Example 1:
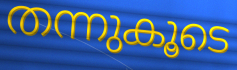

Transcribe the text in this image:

തന്നുകൂടെ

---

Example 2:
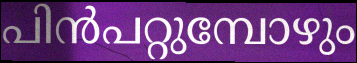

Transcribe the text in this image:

പിൻപറ്റുമ്പോഴും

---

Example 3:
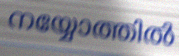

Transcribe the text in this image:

നയ്യോത്തിൽ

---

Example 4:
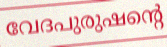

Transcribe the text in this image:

വേദപുരുഷന്റെ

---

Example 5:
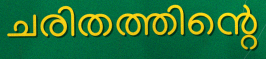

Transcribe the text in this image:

ചരിതത്തിന്റെ